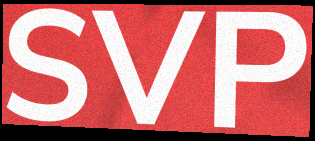
SVP